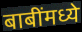
बाबींमध्ये